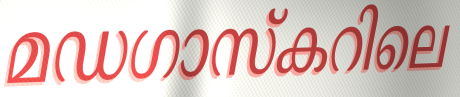
മഡഗാസ്കറിലെ